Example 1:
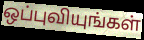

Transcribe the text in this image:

ஒப்புவியுங்கள்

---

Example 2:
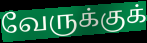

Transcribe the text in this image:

வேருக்குக்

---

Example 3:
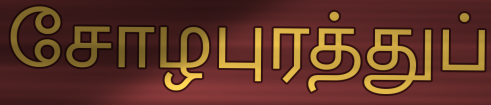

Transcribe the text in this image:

சோழபுரத்துப்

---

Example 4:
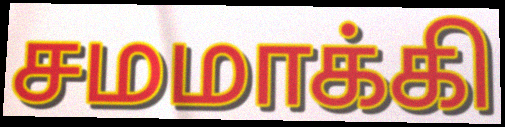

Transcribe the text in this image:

சமமாக்கி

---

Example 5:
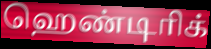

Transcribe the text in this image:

ஹெண்டிரிக்